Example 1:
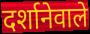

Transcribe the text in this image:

दर्शानेवाले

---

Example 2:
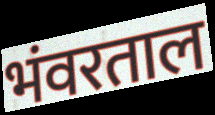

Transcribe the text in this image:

भंवरताल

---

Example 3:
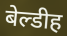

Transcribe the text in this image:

बेल्डीह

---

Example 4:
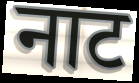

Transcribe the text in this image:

नाट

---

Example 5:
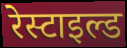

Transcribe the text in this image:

रेस्टाइल्ड